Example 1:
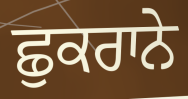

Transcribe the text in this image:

ਛੁਕਰਾਨੇ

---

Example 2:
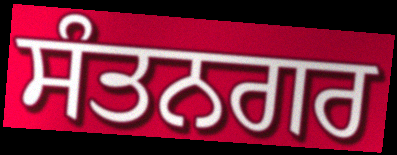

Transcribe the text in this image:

ਸੰਤਨਗਰ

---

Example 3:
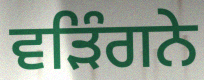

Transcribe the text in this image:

ਵੜਿੰਗਨੇ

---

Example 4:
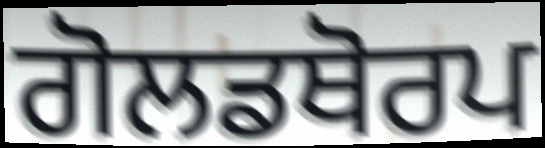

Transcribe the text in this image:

ਗੋਲਡਥੋਰਪ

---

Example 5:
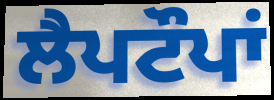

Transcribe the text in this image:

ਲੈਪਟੌਪਾਂ